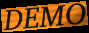
DEMO